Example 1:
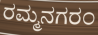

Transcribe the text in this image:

ರಮ್ಮನಗರಂ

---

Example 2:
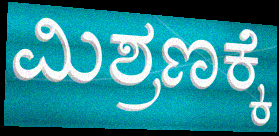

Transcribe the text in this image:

ಮಿಶ್ರಣಕ್ಕೆ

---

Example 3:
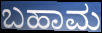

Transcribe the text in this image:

ಬಹಾಮ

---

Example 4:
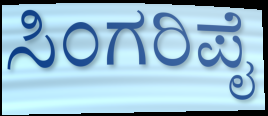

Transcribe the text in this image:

ಸಿಂಗರಿಪೈ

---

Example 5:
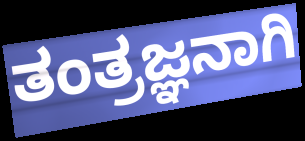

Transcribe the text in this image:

ತಂತ್ರಜ್ಞನಾಗಿ